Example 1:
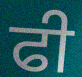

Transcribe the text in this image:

ਫੀ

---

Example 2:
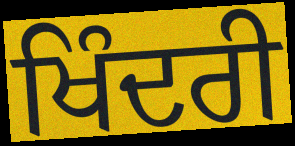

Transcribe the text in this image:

ਖਿੰਦਰੀ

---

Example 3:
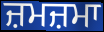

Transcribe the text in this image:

ਜ਼ਮਜ਼ਮਾ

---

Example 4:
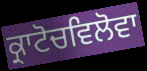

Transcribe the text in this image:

ਕ੍ਰਾਟੋਚਵਿਲੋਵਾ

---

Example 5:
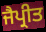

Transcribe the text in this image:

ਜੈਪ੍ਰੀਤ